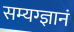
सम्यग्ज्ञानं